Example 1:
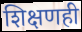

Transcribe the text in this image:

शिक्षणही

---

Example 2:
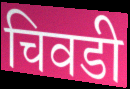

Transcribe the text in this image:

चिवडी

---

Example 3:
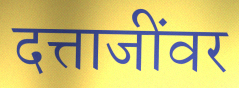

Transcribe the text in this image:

दत्ताजींवर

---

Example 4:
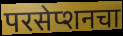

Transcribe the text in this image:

परसेप्शनचा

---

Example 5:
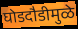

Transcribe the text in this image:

घोडदौडीमुळे